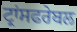
ਟ੍ਰਾਂਸਫਰੇਬਲ